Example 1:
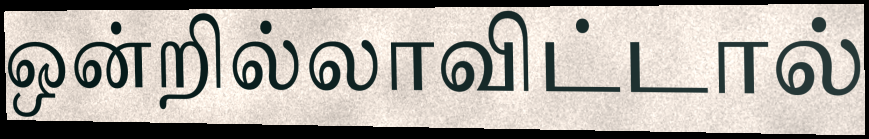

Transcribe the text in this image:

ஒன்றில்லாவிட்டால்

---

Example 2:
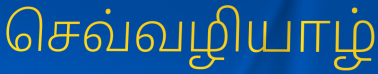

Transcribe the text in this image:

செவ்வழியாழ்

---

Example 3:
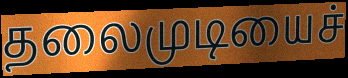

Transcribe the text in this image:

தலைமுடியைச்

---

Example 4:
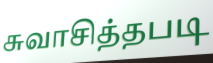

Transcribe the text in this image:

சுவாசித்தபடி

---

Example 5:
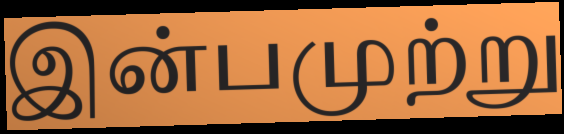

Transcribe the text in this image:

இன்பமுற்று